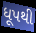
ધૂપથી